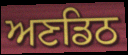
ਅਣਡਿਠ